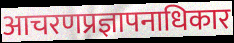
आचरणप्रज्ञापनाधिकार